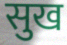
सुख